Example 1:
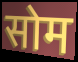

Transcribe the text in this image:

सोम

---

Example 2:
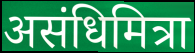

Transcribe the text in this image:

असंधिमित्रा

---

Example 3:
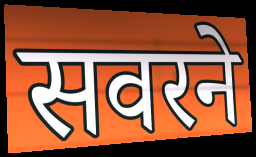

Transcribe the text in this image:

सवरने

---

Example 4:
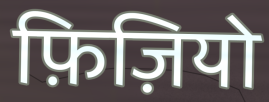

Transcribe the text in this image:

फ़िज़ियो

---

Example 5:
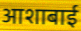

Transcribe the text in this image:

आशाबाई